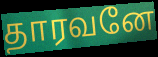
தாரவனே